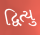
દ્વિત્યુ